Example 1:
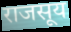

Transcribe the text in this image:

राजसूय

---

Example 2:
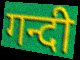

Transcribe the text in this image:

गन्दी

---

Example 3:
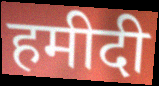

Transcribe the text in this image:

हमीदी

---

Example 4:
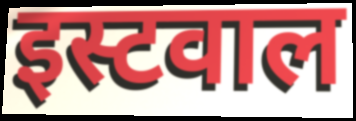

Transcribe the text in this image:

इस्टवाल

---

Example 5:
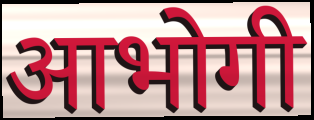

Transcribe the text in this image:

आभोगी